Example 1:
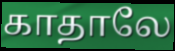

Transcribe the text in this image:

காதாலே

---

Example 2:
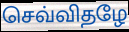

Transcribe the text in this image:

செவ்விதழே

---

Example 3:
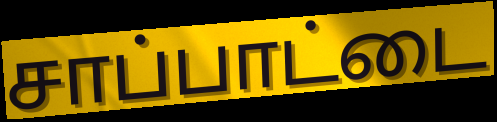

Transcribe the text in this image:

சாப்பாட்டை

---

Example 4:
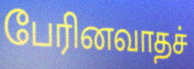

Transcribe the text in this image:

பேரினவாதச்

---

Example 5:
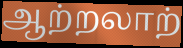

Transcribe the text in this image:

ஆற்றலாற்